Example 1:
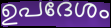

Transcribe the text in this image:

ഉപദേശം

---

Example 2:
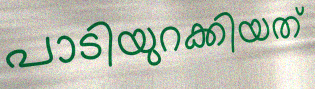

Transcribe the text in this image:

പാടിയുറക്കിയത്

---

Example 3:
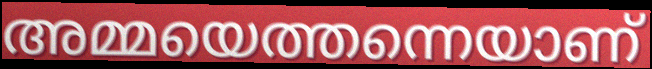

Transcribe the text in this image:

അമ്മയെത്തന്നെയാണ്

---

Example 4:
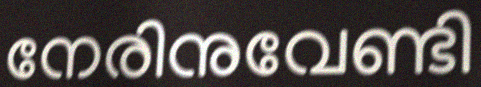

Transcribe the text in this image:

നേരിനുവേണ്ടി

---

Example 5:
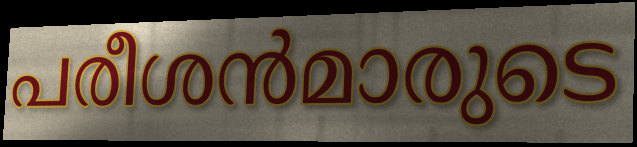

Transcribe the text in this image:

പരീശൻമാരുടെ